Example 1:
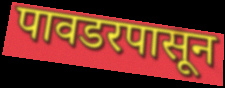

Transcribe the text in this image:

पावडरपासून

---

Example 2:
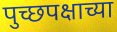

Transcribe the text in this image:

पुच्छपक्षाच्या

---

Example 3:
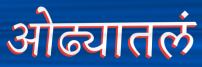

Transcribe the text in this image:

ओढ्यातलं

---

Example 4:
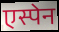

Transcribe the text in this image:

एस्पेन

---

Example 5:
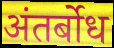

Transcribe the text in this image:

अंतर्बोध